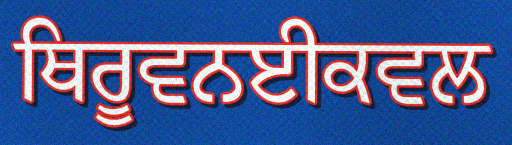
ਥਿਰੂਵਨਈਕਵਲ